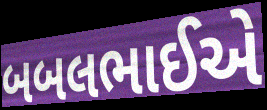
બબલભાઈએ